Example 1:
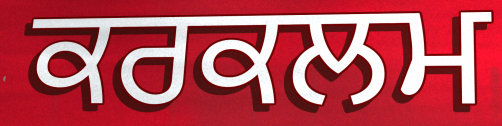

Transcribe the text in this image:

ਕਰਕਲਮ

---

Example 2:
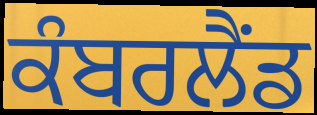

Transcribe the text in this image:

ਕੰਬਰਲੈਂਡ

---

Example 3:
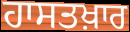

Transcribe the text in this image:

ਹਾਸਤਖ਼ਾਰ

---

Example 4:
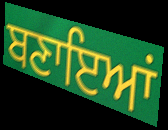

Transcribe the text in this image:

ਬਣਾਇਆਂ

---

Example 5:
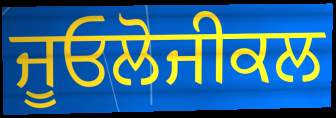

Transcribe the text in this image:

ਜੂਓਲੋਜੀਕਲ